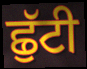
ਛੁੱਟੀ